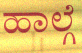
ಹಾಲ್ಗೆ